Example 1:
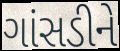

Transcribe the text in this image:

ગાંસડીને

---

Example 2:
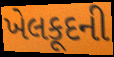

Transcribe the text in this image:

ખેલકૂદની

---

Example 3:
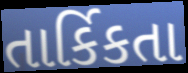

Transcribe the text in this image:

તાર્કિકતા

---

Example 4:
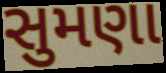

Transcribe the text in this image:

સુમણા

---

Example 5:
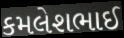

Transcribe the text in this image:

કમલેશભાઈ